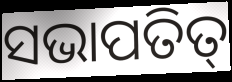
ସଭାପତିତ୍